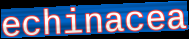
echinacea